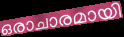
ഒരാചാരമായി